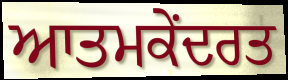
ਆਤਮਕੇਂਦਰਤ